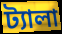
ট্যালা